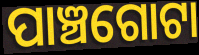
ପାଞ୍ଚଗୋଟା